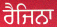
ਰੈਜਿਨਾ